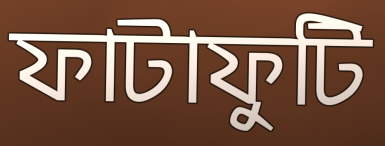
ফাটাফুটি